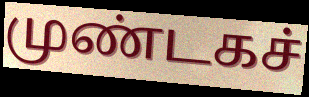
முண்டகச்